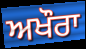
ਅਖੌਰਾ